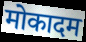
मोकादम